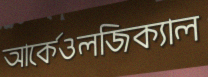
আর্কেওলজিক্যাল